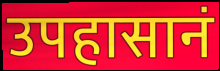
उपहासानं